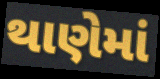
થાણેમાં